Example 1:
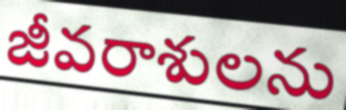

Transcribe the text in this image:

జీవరాశులను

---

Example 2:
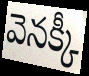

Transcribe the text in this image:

వెనక్కీ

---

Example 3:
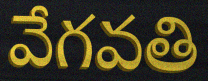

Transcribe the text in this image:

వేగవతి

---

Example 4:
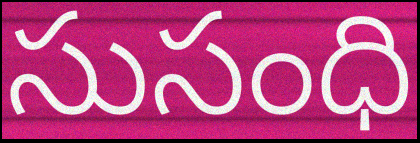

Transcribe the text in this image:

సుసంధి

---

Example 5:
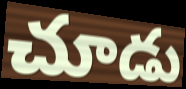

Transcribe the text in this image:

చూడు